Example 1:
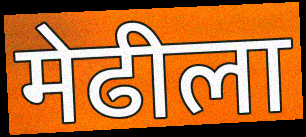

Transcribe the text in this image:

मेढीला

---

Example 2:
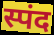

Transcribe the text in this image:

स्पंद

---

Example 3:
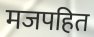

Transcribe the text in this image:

मजपहित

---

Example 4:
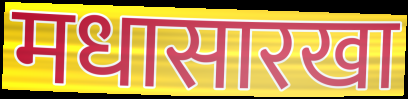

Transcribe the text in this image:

मधासारखा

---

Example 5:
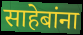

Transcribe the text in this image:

साहेबांना